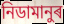
নিডামানুৰ